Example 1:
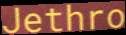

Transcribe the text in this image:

Jethro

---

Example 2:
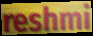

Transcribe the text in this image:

reshmi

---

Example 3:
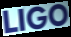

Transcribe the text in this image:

LIGO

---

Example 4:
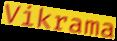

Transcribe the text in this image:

Vikrama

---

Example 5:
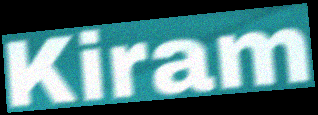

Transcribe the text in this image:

Kiram